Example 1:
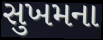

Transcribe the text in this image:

સુખમના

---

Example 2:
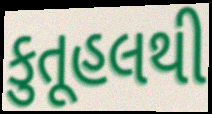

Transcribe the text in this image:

કુતૂહલથી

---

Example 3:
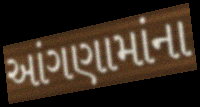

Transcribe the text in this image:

આંગણામાંના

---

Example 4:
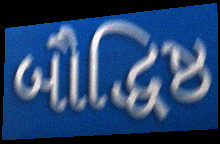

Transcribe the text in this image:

બૌદ્ધિષ્ઠ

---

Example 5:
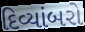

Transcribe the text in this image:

દિવ્યાંબરો